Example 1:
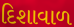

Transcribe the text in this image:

દિશાવાળ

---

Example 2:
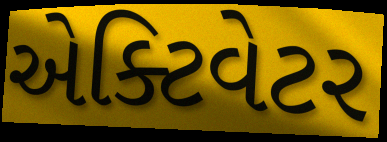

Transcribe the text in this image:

એક્ટિવેટર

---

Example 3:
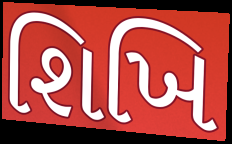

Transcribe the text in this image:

શિખિ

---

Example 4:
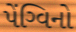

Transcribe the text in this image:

પેંગ્વિનો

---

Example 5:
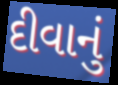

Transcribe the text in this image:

દીવાનું